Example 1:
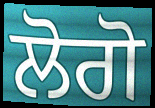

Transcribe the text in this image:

ਲੋਗੋ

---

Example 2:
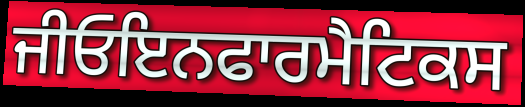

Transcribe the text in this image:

ਜੀਓਇਨਫਾਰਮੈਟਿਕਸ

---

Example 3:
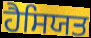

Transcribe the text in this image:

ਹੈਸਿਯਤ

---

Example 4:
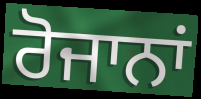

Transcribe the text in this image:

ਰੋਜਾਨਾਂ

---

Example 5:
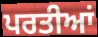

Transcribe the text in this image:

ਪਰਤੀਆਂ